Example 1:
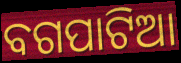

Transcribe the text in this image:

ବଗପାଟିଆ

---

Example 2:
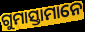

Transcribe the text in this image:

ଗୁମାସ୍ତାମାନେ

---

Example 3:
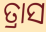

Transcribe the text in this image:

ତ୍ରାସ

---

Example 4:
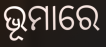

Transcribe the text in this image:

ଭୂମାରେ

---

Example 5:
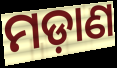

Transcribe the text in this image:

ମଡ଼ାଣ